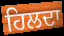
ਹਿਲਦਾ